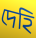
দেহি